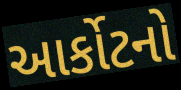
આર્કોટનો